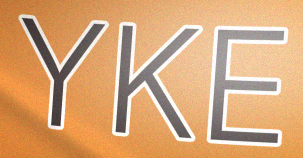
YKE